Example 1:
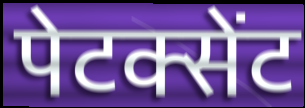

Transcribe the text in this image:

पेटक्सेंट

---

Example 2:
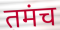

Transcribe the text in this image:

तमंच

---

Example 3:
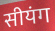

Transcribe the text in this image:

सीयंग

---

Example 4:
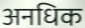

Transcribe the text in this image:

अनधिक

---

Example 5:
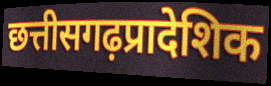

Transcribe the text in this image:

छत्तीसगढ़प्रादेशिक